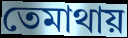
তেমাথায়